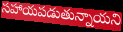
సహాయపడుతున్నాయని